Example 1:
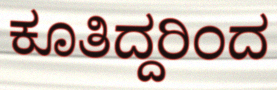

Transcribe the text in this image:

ಕೂತಿದ್ದರಿಂದ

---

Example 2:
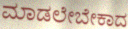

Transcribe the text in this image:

ಮಾಡಲೇಬೇಕಾದ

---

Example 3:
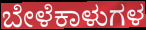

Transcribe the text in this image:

ಬೇಳೆಕಾಳುಗಳ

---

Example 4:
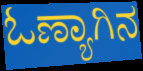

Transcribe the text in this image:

ಓಣ್ಯಾಗಿನ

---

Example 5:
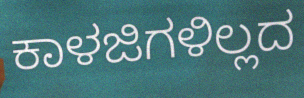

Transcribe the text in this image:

ಕಾಳಜಿಗಳಿಲ್ಲದ